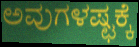
ಅವುಗಳಷ್ಟಕ್ಕೆ